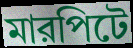
মারপিটে